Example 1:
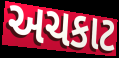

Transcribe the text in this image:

અચકાટ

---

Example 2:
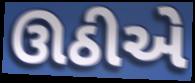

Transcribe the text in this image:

ઊઠીએ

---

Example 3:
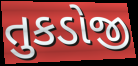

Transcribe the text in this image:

તુકડોજી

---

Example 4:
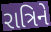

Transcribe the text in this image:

રાત્રિને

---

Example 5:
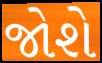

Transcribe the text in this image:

જોશે